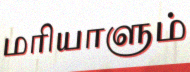
மரியாளும்